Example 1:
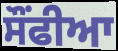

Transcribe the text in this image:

ਸੌਂਫੀਆ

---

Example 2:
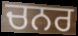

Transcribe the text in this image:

ਚਨਰ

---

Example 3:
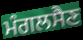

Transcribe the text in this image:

ਮੰਗਲਸੈਣ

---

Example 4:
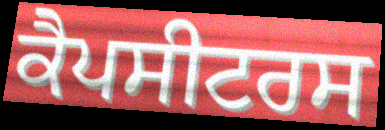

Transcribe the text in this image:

ਕੈਪਸੀਟਰਸ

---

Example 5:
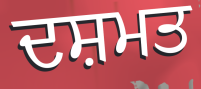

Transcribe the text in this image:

ਦਸ਼ਮਤ